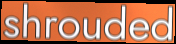
shrouded